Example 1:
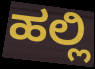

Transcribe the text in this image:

ಹಲ್ಲಿ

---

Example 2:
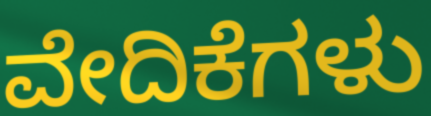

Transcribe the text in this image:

ವೇದಿಕೆಗಳು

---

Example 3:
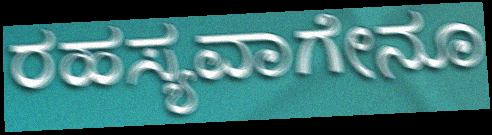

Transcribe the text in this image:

ರಹಸ್ಯವಾಗೇನೂ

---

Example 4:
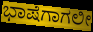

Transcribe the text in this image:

ಭಾಷೆಗಾಗಲೀ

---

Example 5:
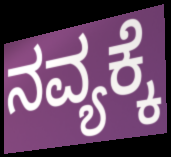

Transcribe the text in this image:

ನವ್ಯಕ್ಕೆ